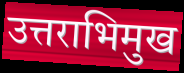
उत्तराभिमुख